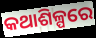
କଥାଶିଳ୍ପରେ